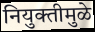
नियुक्तीमुळे